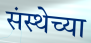
संस्थेच्या